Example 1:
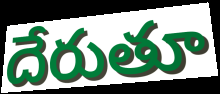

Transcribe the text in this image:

దేరుతూ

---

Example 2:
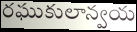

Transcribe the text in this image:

రఘుకులాన్వయ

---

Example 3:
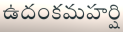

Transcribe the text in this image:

ఉదంకమహర్షి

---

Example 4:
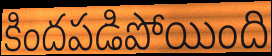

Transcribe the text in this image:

కిందపడిపోయింది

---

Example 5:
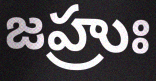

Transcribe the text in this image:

జహ్రుః